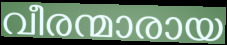
വീരന്മാരായ